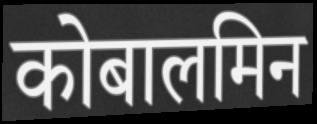
कोबालमिन